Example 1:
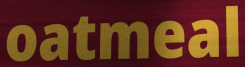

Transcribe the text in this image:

oatmeal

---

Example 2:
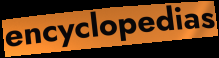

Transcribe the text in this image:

encyclopedias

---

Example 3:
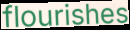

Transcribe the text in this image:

flourishes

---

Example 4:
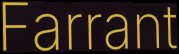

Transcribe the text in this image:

Farrant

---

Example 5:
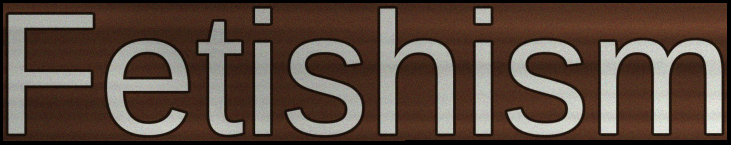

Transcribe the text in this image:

Fetishism